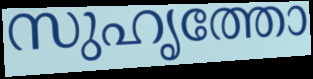
സുഹൃത്തോ